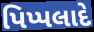
પિપ્પલાદે